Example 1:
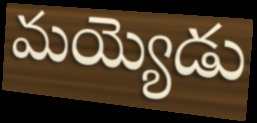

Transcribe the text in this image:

మయ్యెడు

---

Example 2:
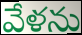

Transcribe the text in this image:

వేళను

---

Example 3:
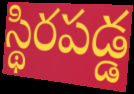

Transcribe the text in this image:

స్థిరపడ్డ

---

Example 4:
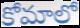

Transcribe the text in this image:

కోమాలో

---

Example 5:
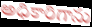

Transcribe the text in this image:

అధికారిగాను